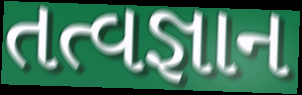
તત્વજ્ઞાન